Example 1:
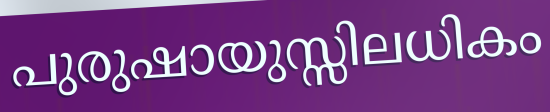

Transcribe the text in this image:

പുരുഷായുസ്സിലധികം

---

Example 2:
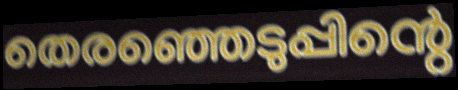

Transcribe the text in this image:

തെരഞ്ഞെടുപ്പിന്റെ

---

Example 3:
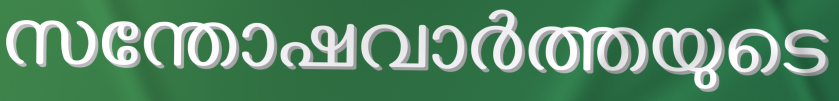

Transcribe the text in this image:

സന്തോഷവാർത്തയുടെ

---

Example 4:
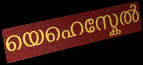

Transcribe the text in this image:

യെഹെസ്കേൽ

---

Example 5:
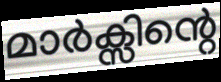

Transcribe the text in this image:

മാർക്സിന്റെ